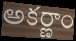
అకర్ణాం